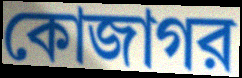
কোজাগর